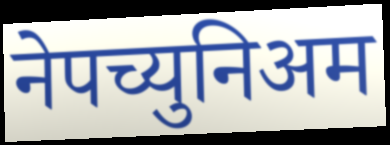
नेपच्युनिअम